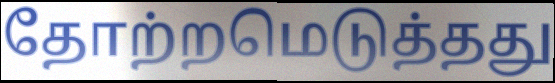
தோற்றமெடுத்தது